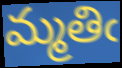
మ్మతిఁ